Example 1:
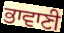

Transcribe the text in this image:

ਭਾਵਾਣੀ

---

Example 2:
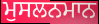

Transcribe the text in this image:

ਮੁਸਲਨਮਾਨ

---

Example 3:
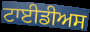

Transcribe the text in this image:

ਟਾਈਡੀਅਸ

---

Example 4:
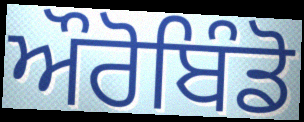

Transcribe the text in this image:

ਔਰੋਬਿੰਡੋ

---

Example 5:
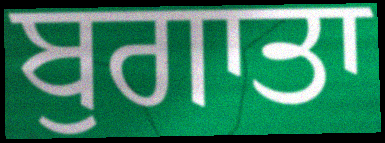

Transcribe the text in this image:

ਬੁਗਾਤਾ